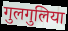
गुलगुलिया